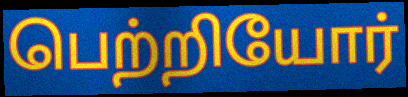
பெற்றியோர்